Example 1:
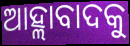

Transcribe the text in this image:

ଆହ୍ଲାବାଦକୁ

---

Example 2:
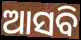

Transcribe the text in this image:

ଆସବି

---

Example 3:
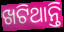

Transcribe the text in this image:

ଖଟିଥାନ୍ତି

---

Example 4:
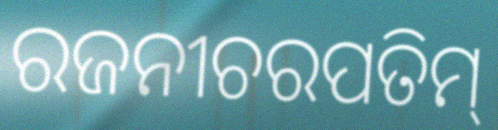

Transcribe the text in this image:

ରଜନୀଚରପତିମ୍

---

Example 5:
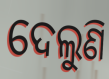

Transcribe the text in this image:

ଦେଲୁଣି